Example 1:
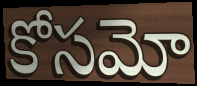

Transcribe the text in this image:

కోసమో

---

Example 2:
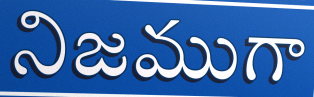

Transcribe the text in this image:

నిజముగా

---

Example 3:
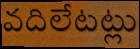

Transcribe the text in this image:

వదిలేటట్లు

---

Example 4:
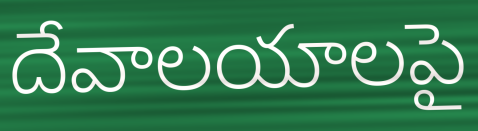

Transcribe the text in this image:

దేవాలయాలపై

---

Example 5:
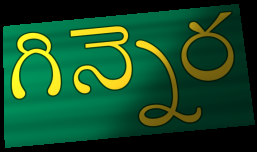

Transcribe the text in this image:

గిన్నెర